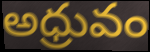
అధ్రువం